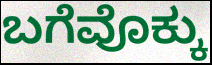
ಬಗೆವೊಕ್ಕು